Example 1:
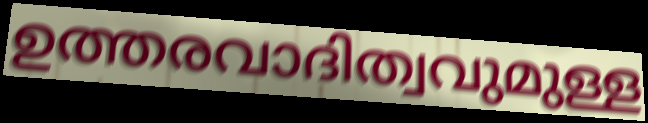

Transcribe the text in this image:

ഉത്തരവാദിത്വവുമുള്ള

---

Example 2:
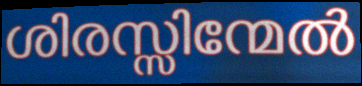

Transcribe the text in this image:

ശിരസ്സിന്മേൽ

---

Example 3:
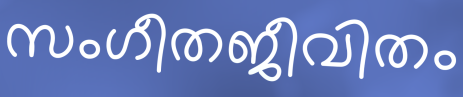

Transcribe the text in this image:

സംഗീതജീവിതം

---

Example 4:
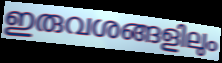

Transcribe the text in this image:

ഇരുവശങ്ങളിലും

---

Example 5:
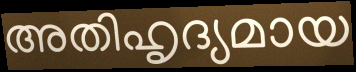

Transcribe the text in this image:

അതിഹൃദ്യമായ